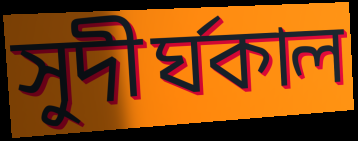
সুদীর্ঘকাল